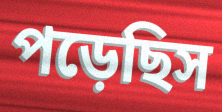
পড়েছিস